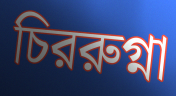
চিররুগ্না